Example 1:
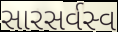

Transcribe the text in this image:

સારસર્વસ્વ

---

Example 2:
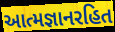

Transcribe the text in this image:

આત્મજ્ઞાનરહિત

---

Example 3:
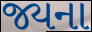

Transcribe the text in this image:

જ્યના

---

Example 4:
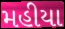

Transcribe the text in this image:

મહીયા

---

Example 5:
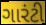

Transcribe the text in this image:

ગારંટી